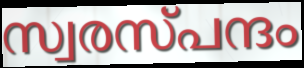
സ്വരസ്പന്ദം